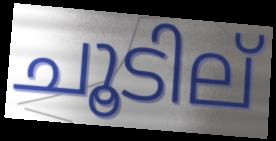
ചൂടില്